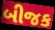
બીજક